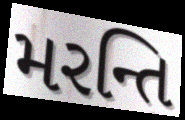
મરન્તિ